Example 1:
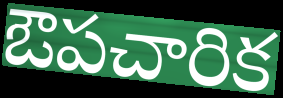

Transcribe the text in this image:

ఔపచారిక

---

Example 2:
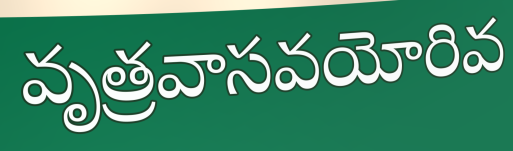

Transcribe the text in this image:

వృత్రవాసవయోరివ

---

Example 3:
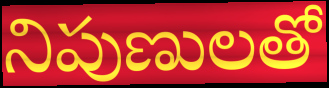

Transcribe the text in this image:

నిపుణులతో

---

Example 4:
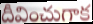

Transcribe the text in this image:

దీవించుగాక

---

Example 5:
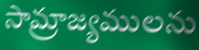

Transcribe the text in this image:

సామ్రాజ్యములను